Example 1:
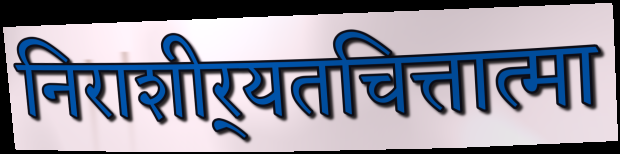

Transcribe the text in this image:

निराशीर्यतचित्तात्मा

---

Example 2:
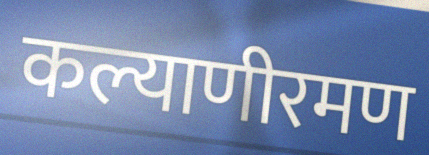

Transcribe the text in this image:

कल्याणीरमण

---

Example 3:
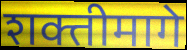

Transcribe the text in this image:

शक्तीमागे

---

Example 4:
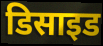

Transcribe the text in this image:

डिसाइड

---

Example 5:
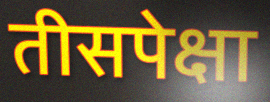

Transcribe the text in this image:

तीसपेक्षा